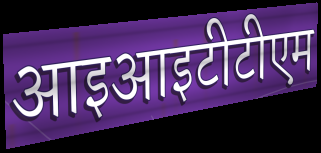
आइआइटीटीएम